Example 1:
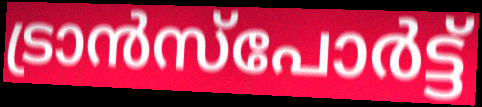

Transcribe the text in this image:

ട്രാൻസ്പോർട്ട്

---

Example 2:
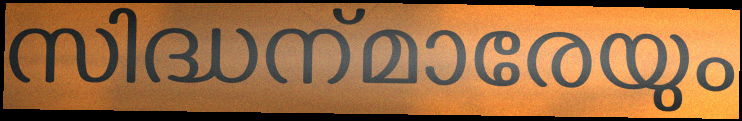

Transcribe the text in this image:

സിദ്ധന്‌മാരേയും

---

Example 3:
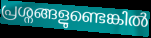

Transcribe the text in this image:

പ്രശ്നങ്ങളുണ്ടെങ്കിൽ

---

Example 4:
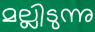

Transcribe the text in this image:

മല്ലിടുന്നു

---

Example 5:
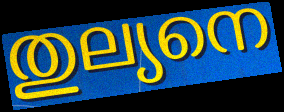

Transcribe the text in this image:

തുല്യനെ